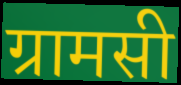
ग्रामसी